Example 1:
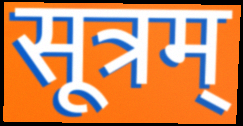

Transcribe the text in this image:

सूत्रम्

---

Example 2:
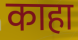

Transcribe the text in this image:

काहा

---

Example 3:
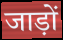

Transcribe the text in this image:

जाड़ों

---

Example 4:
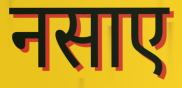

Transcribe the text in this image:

नसाए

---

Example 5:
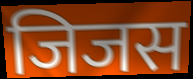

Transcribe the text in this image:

जिजस